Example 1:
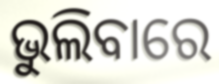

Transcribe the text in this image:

ଭୁଲିବାରେ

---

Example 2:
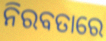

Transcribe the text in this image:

ନିରବତାରେ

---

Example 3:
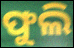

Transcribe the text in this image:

ଫୁଲି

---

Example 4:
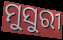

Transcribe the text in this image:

ମୁସୁରୀ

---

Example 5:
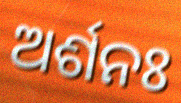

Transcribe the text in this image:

ଅର୍ଶନଃ